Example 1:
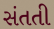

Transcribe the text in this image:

સંતતી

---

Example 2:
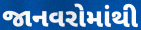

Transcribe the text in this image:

જાનવરોમાંથી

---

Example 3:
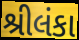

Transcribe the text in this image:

શ્રીલંકા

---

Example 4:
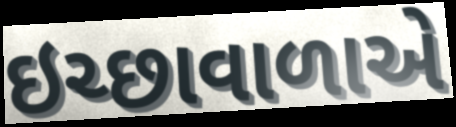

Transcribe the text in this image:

ઇચ્છાવાળાએ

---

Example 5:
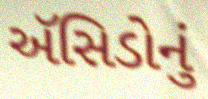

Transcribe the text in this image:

ઍસિડોનું